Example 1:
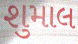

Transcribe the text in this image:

શુમાલ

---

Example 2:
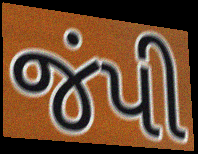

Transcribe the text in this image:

જંપી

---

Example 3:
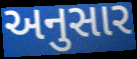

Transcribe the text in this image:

અનુસાર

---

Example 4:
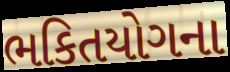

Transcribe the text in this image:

ભકિતયોગના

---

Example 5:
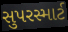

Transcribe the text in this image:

સુપરસ્માર્ટ